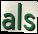
als